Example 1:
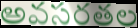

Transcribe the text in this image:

అవసరతల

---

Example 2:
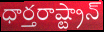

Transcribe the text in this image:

ధార్తరాష్ట్రాన్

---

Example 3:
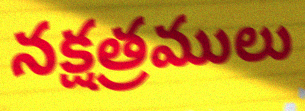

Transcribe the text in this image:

నక్షత్రములు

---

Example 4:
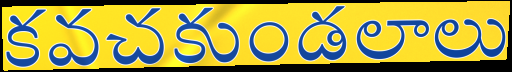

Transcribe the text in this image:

కవచకుండలాలు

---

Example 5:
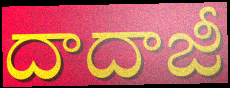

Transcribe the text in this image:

దాదాజీ